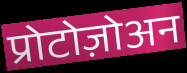
प्रोटोज़ोअन